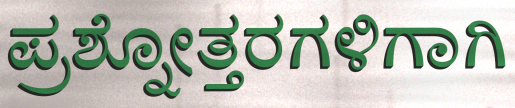
ಪ್ರಶ್ನೋತ್ತರಗಳಿಗಾಗಿ